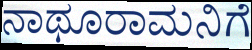
ನಾಥೂರಾಮನಿಗೆ